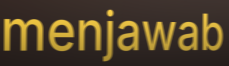
menjawab